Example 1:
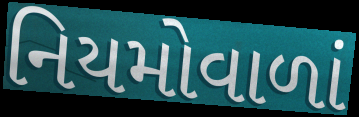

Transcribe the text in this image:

નિયમોવાળાં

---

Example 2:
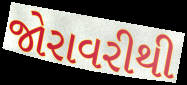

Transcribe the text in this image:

જોરાવરીથી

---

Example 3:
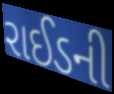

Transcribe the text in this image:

રાઈડની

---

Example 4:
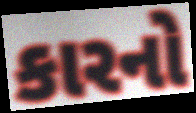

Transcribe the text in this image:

કારનો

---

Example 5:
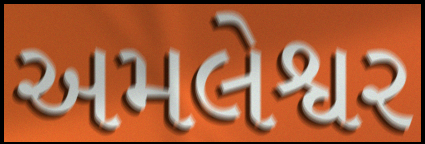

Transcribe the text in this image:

અમલેશ્વર